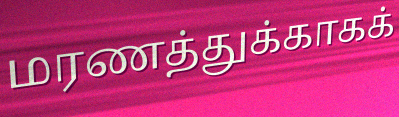
மரணத்துக்காகக்